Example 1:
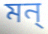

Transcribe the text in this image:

মন্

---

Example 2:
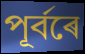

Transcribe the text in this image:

পূৰ্বৰে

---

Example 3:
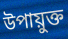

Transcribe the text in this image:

উপায়ুক্ত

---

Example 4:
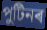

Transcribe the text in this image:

পুটিনৰ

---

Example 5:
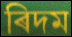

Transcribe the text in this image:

ৰিদম